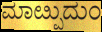
ಮಾೞ್ಪುದುಂ